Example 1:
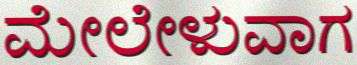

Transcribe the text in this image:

ಮೇಲೇಳುವಾಗ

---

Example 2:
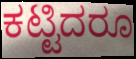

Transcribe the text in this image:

ಕಟ್ಟಿದರೂ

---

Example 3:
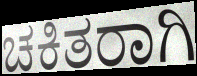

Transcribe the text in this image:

ಚಕಿತರಾಗಿ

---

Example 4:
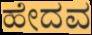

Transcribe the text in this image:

ಹೇದವ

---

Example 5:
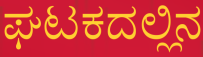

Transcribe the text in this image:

ಘಟಕದಲ್ಲಿನ